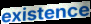
existence